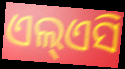
ଏଲ୍ଏସି